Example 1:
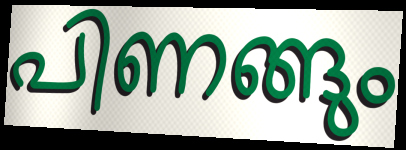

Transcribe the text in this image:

പിണങ്ങും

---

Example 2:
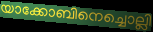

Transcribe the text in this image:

യാക്കോബിനെച്ചൊല്ലി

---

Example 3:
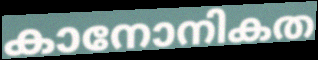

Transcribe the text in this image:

കാനോനികത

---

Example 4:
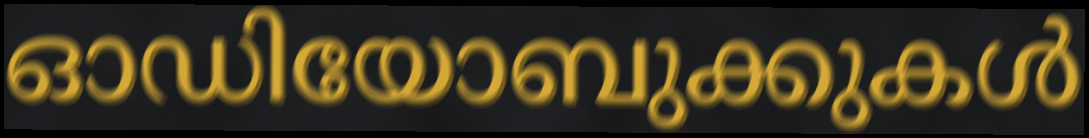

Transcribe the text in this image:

ഓഡിയോബുക്കുകൾ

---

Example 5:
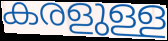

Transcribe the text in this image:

കരളുള്ള